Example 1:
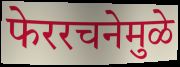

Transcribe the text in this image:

फेररचनेमुळे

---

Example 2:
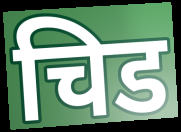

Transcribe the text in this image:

चिड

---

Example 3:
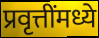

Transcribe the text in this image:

प्रवृत्तींमध्ये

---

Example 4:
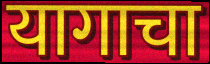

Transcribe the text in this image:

यागाचा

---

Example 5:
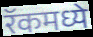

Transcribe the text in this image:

रॅकमध्ये